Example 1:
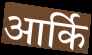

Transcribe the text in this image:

आर्कि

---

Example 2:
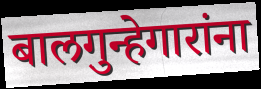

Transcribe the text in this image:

बालगुन्हेगारांना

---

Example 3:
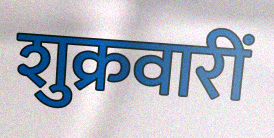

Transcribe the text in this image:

शुक्रवारीं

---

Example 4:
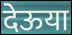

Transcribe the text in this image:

देऊया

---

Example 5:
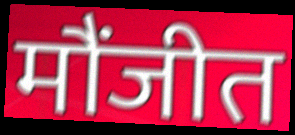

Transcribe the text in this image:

मौंजीत